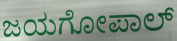
ಜಯಗೋಪಾಲ್